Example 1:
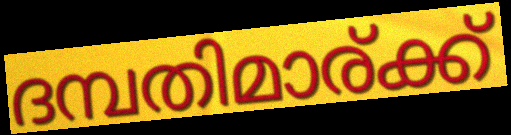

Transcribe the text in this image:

ദമ്പതിമാര്ക്ക്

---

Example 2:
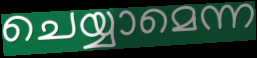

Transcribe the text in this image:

ചെയ്യാമെന്ന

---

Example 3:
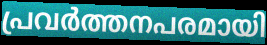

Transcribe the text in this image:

പ്രവർത്തനപരമായി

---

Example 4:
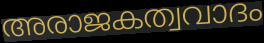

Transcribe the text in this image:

അരാജകത്വവാദം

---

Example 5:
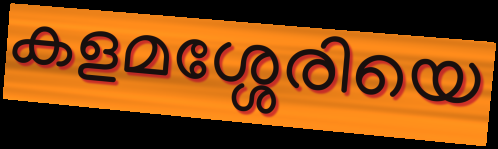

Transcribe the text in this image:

കളമശ്ശേരിയെ